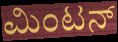
ಮಿಂಟನ್